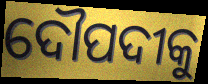
ଦୌପଦୀକୁ